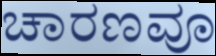
ಚಾರಣವೂ